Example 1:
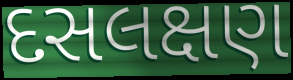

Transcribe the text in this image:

દસલક્ષણ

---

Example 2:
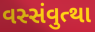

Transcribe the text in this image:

વસ્સંવુત્થા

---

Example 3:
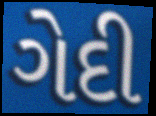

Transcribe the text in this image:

ગેદી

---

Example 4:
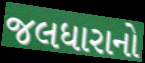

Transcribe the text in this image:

જલધારાનો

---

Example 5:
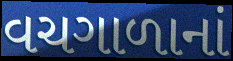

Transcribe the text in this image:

વચગાળાનાં